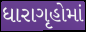
ધારાગૃહોમાં